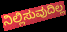
ನಿಲ್ಲಿಸುವುದಿಲ್ಲ